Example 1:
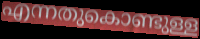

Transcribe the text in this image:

എന്നതുകൊണ്ടുള്ള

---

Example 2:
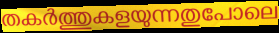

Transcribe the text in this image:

തകർത്തുകളയുന്നതുപോലെ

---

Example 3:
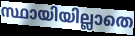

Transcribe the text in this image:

സ്ഥായിയില്ലാതെ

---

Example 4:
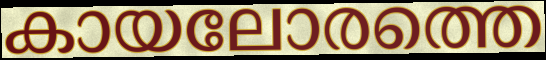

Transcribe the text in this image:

കായലോരത്തെ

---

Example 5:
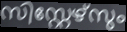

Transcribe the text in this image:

സിസ്റ്റേഴ്സും